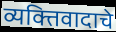
व्यक्तिवादाचे